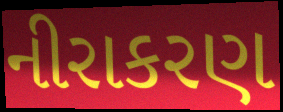
નીરાકરણ